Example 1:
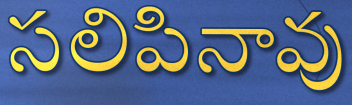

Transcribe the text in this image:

సలిపినావు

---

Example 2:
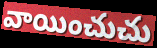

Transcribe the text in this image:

వాయించుచు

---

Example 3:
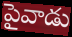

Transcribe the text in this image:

పైవాడు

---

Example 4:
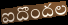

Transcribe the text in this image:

ఐదొందల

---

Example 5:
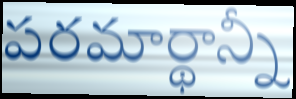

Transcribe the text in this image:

పరమార్థాన్నీ